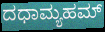
ದಧಾಮ್ಯಹಮ್